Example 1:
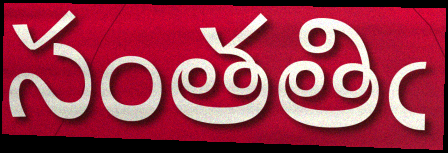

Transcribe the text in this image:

సంతతిఁ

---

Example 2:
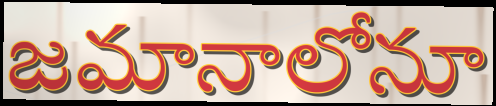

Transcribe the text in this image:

జమానాలోనూ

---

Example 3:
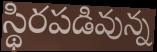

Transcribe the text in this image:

స్థిరపడివున్న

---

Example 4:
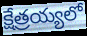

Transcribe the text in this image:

క్షేత్రయ్యలో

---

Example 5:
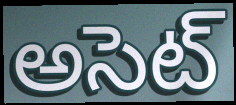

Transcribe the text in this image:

అసెట్